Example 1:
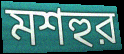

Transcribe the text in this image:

মশহুর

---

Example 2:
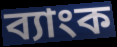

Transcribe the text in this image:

ব্যাংক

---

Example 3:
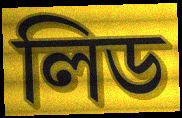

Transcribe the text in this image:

লিড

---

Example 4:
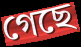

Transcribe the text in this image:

গেছে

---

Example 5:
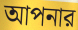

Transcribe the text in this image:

আপনার